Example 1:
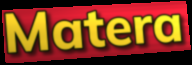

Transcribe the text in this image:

Matera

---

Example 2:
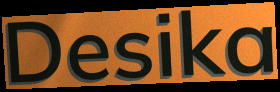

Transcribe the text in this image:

Desika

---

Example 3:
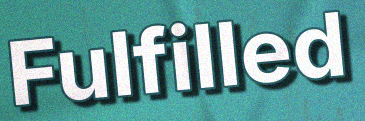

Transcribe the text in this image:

Fulfilled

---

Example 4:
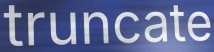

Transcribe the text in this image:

truncate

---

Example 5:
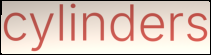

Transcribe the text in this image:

cylinders